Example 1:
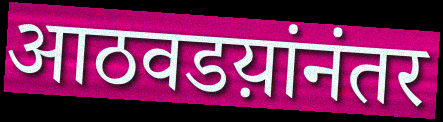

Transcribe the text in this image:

आठवडय़ांनंतर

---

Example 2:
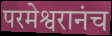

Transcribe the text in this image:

परमेश्वरानंच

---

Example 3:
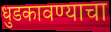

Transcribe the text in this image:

धुडकावण्याचा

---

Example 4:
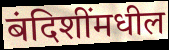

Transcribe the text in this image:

बंदिशींमधील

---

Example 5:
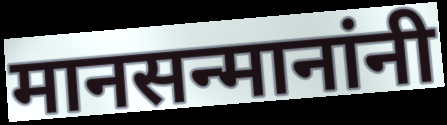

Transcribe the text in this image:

मानसन्मानांनी